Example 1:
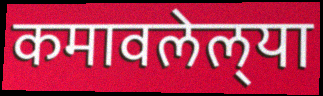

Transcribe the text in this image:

कमावलेल्या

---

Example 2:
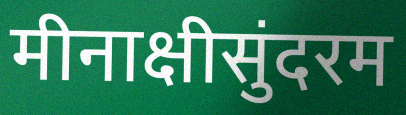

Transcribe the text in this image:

मीनाक्षीसुंदरम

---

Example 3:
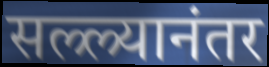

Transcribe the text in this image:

सल्ल्यानंतर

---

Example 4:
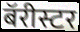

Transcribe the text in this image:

बॅरीस्टर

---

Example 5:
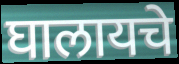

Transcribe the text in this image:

घालायचे